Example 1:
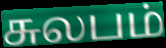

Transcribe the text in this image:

சுலபம்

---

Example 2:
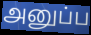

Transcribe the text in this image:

அனுப்ப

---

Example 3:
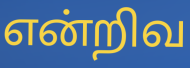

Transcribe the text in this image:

என்றிவ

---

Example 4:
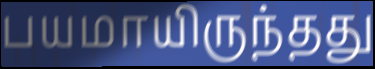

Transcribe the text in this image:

பயமாயிருந்தது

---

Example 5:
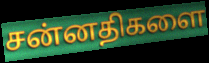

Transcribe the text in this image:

சன்னதிகளை